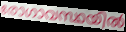
രോഗാവസ്ഥയിൽ